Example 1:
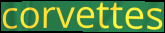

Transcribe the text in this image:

corvettes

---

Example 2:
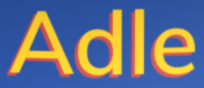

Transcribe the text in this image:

Adle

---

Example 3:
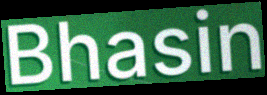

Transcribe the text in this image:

Bhasin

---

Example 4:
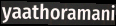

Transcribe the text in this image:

yaathoramani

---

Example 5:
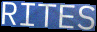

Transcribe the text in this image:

RITES